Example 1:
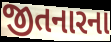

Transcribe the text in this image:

જીતનારના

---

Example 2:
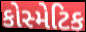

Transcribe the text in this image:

કોસ્મેટિક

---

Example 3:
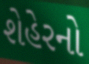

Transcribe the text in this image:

શેહેરનો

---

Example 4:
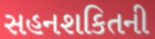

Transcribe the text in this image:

સહનશકિતની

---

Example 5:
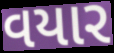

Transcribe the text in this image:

વયાર